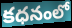
కధనంలో